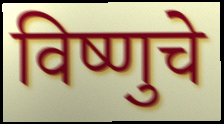
विष्णुचे